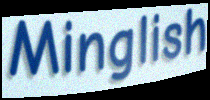
Minglish